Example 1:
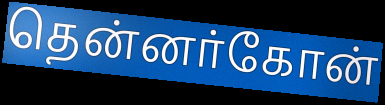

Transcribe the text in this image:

தென்னர்கோன்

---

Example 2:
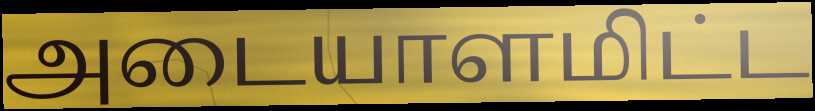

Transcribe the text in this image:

அடையாளமிட்ட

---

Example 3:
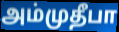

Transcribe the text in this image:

அம்முதீபா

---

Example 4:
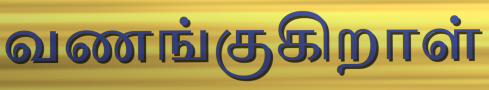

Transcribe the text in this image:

வணங்குகிறாள்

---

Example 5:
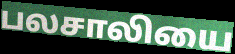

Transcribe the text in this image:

பலசாலியை